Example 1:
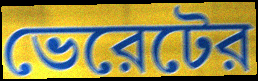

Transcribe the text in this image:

ভেরেটের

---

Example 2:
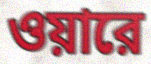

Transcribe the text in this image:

ওয়ারে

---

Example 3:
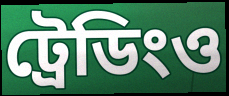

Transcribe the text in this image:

ট্রেডিংও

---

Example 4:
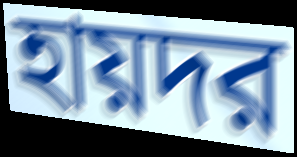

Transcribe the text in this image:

হায়দর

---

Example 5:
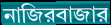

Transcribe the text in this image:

নাজিরবাজার